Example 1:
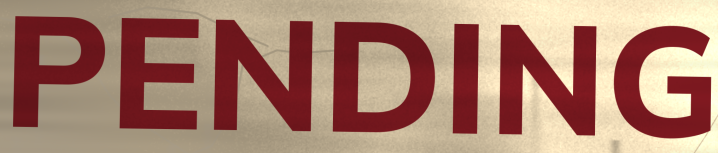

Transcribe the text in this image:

PENDING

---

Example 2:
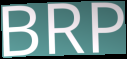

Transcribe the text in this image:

BRP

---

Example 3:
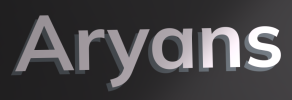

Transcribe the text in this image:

Aryans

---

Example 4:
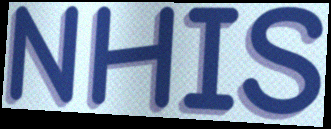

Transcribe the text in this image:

NHIS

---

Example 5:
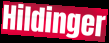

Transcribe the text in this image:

Hildinger